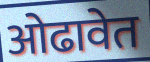
ओढावेत